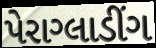
પેરાગ્લાડીંગ